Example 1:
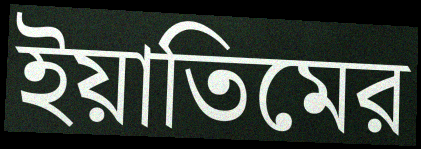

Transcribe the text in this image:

ইয়াতিমের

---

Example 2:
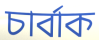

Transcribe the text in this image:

চার্বাক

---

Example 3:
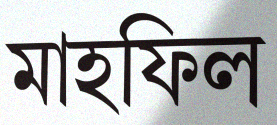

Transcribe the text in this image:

মাহফিল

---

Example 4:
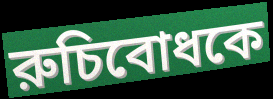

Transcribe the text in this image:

রুচিবোধকে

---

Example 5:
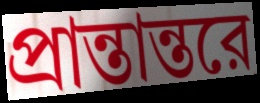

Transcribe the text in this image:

প্রান্তান্তরে